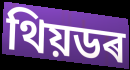
থিয়ডৰ